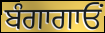
ਬੰਗਾਗਾਓਂ